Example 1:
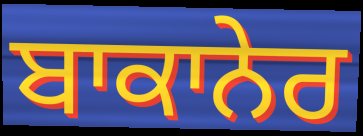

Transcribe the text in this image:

ਬਾਕਾਨੇਰ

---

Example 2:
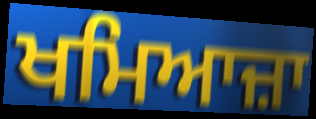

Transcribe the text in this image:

ਖਮਿਆਜ਼ਾ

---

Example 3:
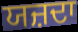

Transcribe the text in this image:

ਯਜ਼ਦਾ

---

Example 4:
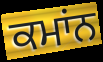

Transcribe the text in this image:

ਕਮਾਂਨ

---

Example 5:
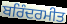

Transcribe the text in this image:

ਬਰਿੰਦਰਮੀਤ